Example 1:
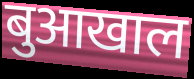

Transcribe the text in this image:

बुआखाल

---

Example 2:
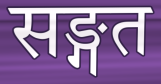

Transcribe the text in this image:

सङ्गत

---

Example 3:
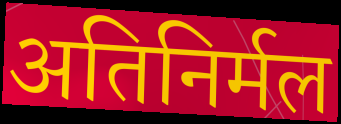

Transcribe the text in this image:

अतिनिर्मल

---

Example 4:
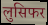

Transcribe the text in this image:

लुसिफर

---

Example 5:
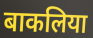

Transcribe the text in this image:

बाकलिया